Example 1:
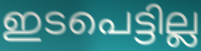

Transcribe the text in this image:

ഇടപെട്ടില്ല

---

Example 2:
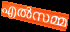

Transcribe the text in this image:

എൽസമ്മ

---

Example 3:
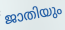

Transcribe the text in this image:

ജാതിയും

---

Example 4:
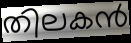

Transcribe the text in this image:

തിലകൻ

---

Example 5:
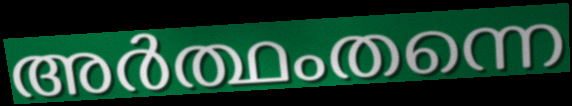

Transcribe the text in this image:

അർത്ഥംതന്നെ